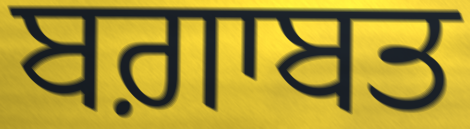
ਬਗ਼ਾਬਤ